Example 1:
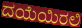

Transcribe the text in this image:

ದಯೆಯಿರಲಿ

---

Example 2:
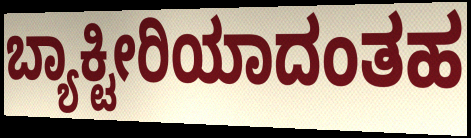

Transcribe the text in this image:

ಬ್ಯಾಕ್ಟೀರಿಯಾದಂತಹ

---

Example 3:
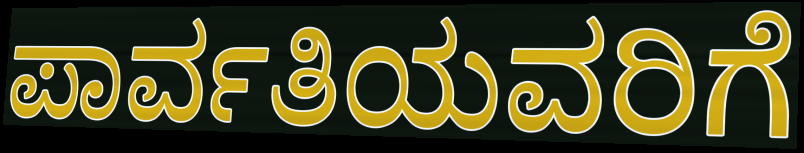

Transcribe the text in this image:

ಪಾರ್ವತಿಯವರಿಗೆ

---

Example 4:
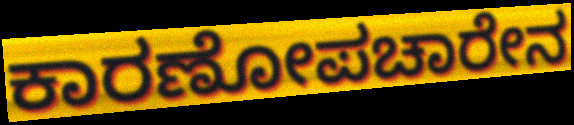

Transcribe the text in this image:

ಕಾರಣೋಪಚಾರೇನ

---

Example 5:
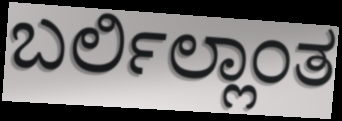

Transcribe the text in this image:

ಬರ್ಲಿಲ್ಲಾಂತ